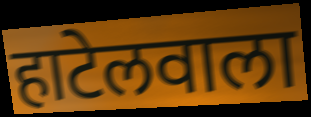
हाटेलवाला